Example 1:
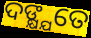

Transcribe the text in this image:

ଦଙ୍କ୍ଷ୍ଯତେ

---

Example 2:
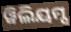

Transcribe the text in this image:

ୱିଲିୟମ୍ସ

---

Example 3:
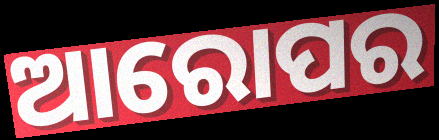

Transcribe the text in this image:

ଆରୋପର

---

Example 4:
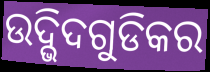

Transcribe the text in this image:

ଉଦ୍ଭିଦଗୁଡିକର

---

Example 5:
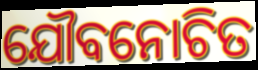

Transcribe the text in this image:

ଯୌବନୋଚିତ